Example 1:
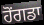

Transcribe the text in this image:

ਹੋਂਗਡਾ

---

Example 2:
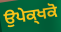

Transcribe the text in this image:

ਉਪੇਕ੍ਖਕੋ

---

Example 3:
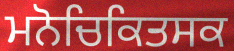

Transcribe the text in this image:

ਮਨੋਚਿਕਿਤਸਕ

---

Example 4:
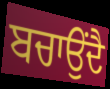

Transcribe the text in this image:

ਬਚਾਉਂਦੈ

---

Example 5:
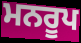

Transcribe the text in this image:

ਮਨਰੂਪ